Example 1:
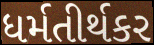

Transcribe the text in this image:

ધર્મતીર્થકર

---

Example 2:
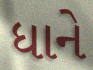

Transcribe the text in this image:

ધાને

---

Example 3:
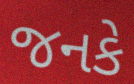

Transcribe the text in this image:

જનકે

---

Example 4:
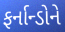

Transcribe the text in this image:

ફર્નાન્ડોને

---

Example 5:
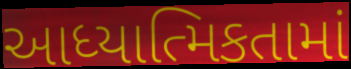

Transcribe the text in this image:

આધ્યાત્મિકતામાં